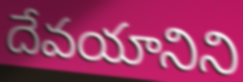
దేవయానిని